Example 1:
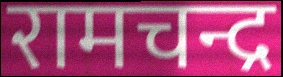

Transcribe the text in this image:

रामचन्द्र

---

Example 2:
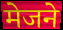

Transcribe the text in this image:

मेजने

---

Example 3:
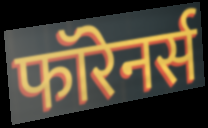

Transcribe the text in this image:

फॉरेनर्स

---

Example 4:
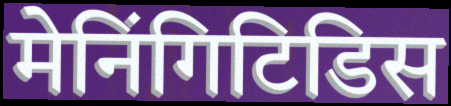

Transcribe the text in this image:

मेनिंगिटिडिस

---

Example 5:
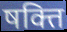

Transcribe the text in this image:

षक्ति